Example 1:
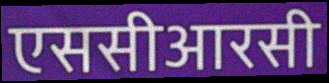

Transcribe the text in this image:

एससीआरसी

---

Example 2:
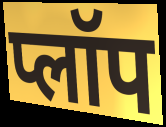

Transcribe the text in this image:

प्लॉप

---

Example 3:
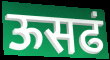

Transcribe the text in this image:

ऊसढं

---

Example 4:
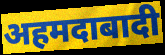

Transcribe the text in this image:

अहमदाबादी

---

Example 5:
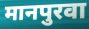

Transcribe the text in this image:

मानपुरवा